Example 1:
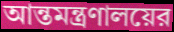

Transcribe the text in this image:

আন্তমন্ত্রণালয়ের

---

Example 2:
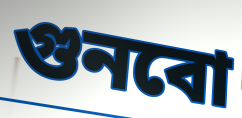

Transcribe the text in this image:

গুনবো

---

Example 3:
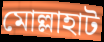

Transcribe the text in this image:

মোল্লাহাট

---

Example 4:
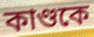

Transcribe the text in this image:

কাণ্ডকে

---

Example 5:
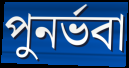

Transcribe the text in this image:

পুনর্ভবা